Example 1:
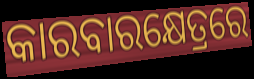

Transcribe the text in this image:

କାରବାରକ୍ଷେତ୍ରରେ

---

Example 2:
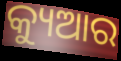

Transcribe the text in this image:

କ୍ୟୁଆର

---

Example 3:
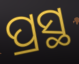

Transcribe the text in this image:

ପ୍ରସ୍ଥ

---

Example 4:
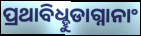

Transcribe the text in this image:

ପ୍ରଥାବିଧ୍ହୁଡାଗ୍ନାନାଂ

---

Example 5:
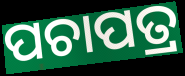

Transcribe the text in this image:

ପଚାପତ୍ର